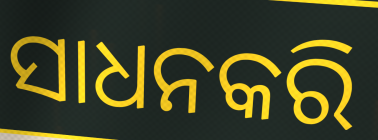
ସାଧନକରି